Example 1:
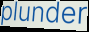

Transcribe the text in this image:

plunder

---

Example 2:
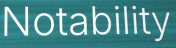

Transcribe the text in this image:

Notability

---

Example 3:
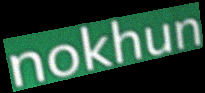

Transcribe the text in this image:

nokhun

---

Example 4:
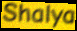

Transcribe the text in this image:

Shalya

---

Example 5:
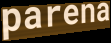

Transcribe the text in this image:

parena